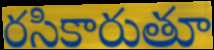
రసికారుతూ